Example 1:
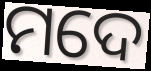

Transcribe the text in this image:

ମଦେ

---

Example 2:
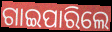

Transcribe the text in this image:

ଗାଇପାରିଲେ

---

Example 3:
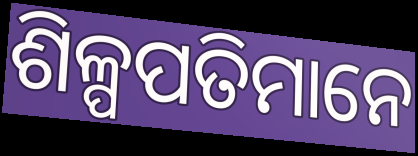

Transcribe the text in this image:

ଶିଳ୍ପପତିମାନେ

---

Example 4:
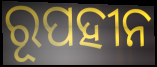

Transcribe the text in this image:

ରୂପହୀନ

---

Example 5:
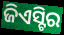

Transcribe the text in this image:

ଜିଏସ୍ଟିର